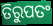
ତିରୁପତଂ